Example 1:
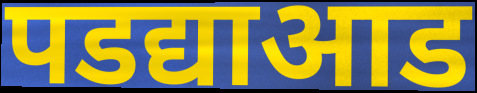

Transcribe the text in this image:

पडद्याआड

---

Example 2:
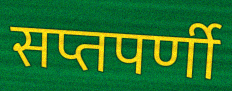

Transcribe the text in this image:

सप्तपर्णी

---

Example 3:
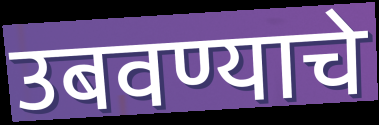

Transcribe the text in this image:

उबवण्याचे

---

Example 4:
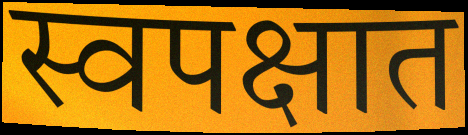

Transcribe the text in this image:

स्वपक्षात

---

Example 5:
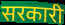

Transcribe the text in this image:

सरकारी